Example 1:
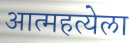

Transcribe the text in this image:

आत्महत्येला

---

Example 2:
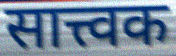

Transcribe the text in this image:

सात्त्वक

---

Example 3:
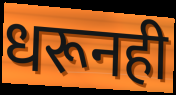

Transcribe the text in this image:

धरूनही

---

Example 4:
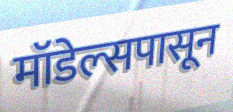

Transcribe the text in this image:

मॉडेल्सपासून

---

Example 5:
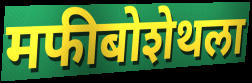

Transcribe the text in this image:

मफीबोशेथला